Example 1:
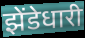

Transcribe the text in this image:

झेंडेधारी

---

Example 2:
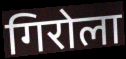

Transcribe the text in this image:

गिरोला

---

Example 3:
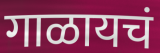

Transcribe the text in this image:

गाळायचं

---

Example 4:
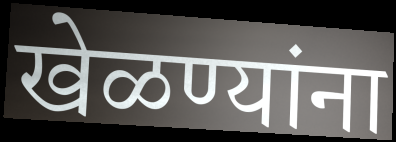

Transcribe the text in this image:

खेळण्यांना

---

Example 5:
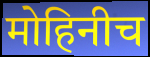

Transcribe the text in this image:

मोहिनीच